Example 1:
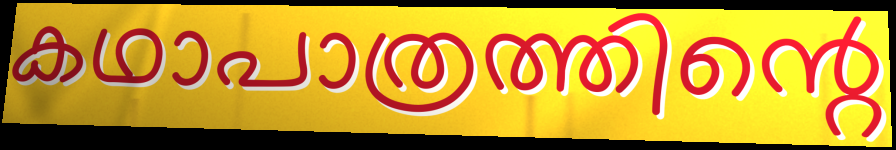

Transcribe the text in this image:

കഥാപാത്രത്തിന്റെ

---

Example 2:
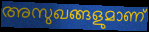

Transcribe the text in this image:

അസുഖങ്ങളുമാണ്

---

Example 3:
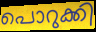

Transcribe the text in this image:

പൊറുക്കി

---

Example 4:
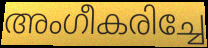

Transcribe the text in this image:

അംഗീകരിച്ചേ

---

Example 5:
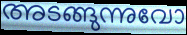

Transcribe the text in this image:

അടങ്ങുന്നുവോ